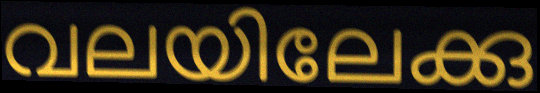
വലയിലേക്കു